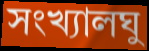
সংখ্যালঘু